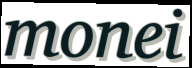
monei